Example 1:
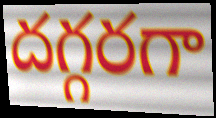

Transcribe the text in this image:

దగ్గరగా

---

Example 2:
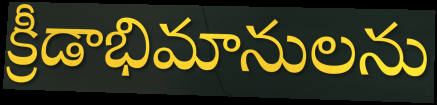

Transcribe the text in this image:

క్రీడాభిమానులను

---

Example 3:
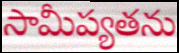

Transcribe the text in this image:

సామీప్యతను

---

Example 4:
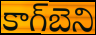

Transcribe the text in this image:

కాగ్‌బెని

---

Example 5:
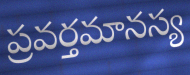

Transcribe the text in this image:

ప్రవర్తమానస్య